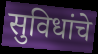
सुविधांचे